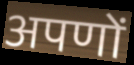
अपणों